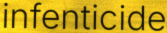
infenticide